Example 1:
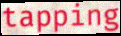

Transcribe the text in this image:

tapping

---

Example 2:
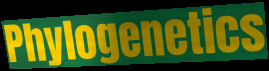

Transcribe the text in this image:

Phylogenetics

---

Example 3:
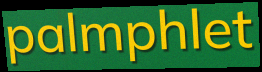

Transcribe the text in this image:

palmphlet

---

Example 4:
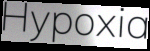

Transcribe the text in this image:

Hypoxia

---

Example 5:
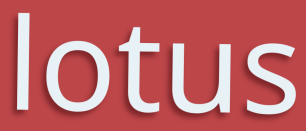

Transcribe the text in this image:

lotus